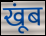
खूंब